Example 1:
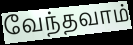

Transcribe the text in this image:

வேந்தவாம்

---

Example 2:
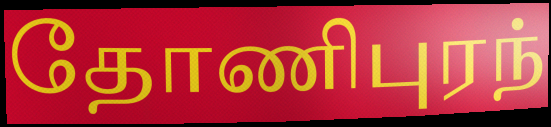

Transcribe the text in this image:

தோணிபுரந்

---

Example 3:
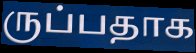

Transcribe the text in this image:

ருப்பதாக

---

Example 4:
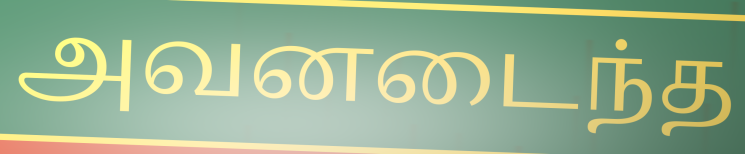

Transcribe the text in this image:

அவனடைந்த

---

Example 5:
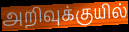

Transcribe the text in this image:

அறிவுக்குயில்